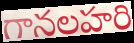
గానలహరి